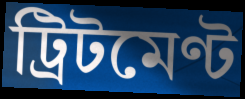
ট্রিটমেণ্ট